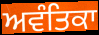
ਅਵੰਤਿਕਾ